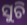
ସୁଚି